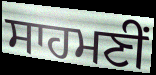
ਸਾਹਮਣੀਂ